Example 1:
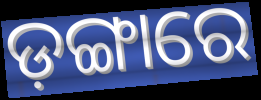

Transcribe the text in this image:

ଡ଼ଙ୍ଗାରେ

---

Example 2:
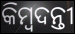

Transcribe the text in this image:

କିମ୍ଵଦନ୍ତୀ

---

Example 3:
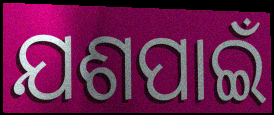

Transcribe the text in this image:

ଯଶପାଇଁ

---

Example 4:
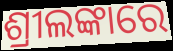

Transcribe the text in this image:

ଶ୍ରୀଲଙ୍କାରେ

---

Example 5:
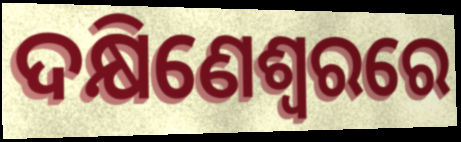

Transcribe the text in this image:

ଦକ୍ଷିଣେଶ୍ୱରରେ